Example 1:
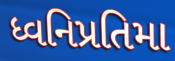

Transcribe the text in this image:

ધ્વનિપ્રતિમા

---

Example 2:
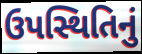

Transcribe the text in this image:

ઉપસ્થિતિનું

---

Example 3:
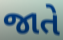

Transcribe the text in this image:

જાતે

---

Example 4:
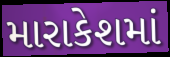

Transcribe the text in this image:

મારાકેશમાં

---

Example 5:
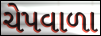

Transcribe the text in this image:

ચેપવાળા